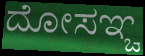
ದೋಸಞ್ಚ